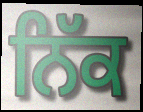
ਨਿੱਕ